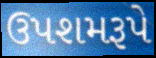
ઉપશમરૂપે